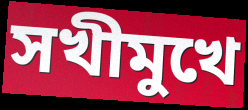
সখীমুখে